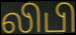
லிபி